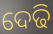
ଦେଢି